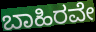
ಬಾಹಿರವೇ